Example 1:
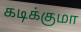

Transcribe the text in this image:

கடிக்குமா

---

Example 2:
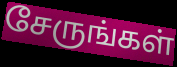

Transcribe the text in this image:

சேருங்கள்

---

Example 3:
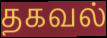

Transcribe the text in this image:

தகவல்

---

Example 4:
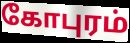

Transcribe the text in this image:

கோபுரம்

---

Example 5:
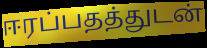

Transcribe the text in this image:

ஈரப்பதத்துடன்